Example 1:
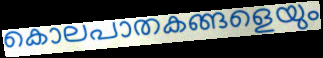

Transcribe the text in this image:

കൊലപാതകങ്ങളെയും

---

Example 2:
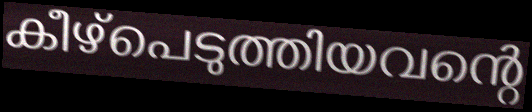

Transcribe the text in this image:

കീഴ്പെടുത്തിയവന്റെ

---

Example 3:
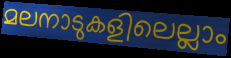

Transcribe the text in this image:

മലനാടുകളിലെല്ലാം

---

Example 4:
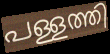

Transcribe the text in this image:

പള്ളത്തി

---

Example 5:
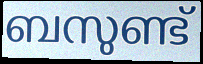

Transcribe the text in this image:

ബസുണ്ട്